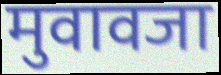
मुवावजा